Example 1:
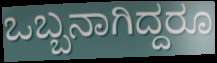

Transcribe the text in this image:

ಒಬ್ಬನಾಗಿದ್ದರೂ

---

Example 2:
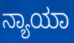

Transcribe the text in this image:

ನ್ಯಾಯಾ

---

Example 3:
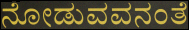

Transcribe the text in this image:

ನೋಡುವವನಂತೆ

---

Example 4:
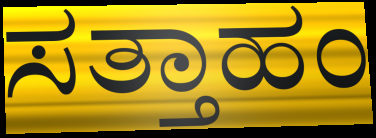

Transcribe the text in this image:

ಸತ್ತಾಹಂ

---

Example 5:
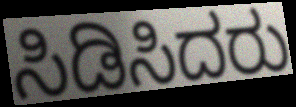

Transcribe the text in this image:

ಸಿಡಿಸಿದರು